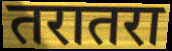
तरातरा